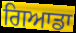
ਗਿਆਡਾ